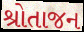
શ્રોતાજન